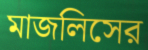
মাজলিসের